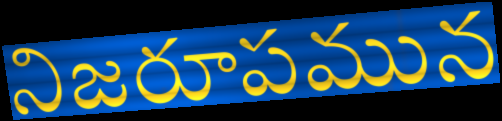
నిజరూపమున